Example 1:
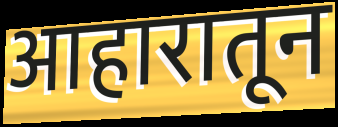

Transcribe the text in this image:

आहारातून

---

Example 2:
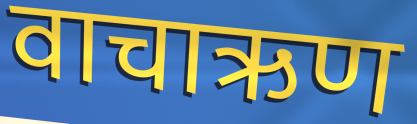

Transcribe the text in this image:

वाचाऋण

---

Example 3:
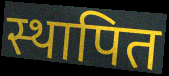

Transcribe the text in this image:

स्थापित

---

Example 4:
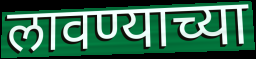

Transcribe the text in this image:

लावण्याच्या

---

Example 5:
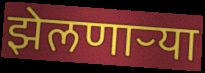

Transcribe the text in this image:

झेलणाऱ्या